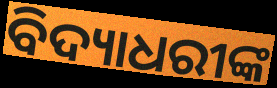
ବିଦ୍ୟାଧରୀଙ୍କ